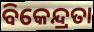
ବିକେନ୍ଦ୍ରତା